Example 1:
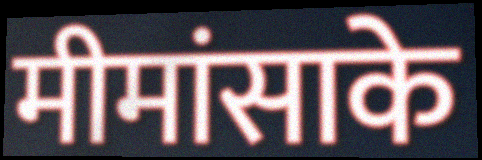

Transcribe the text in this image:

मीमांसाके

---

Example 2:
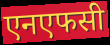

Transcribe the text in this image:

एनएफसी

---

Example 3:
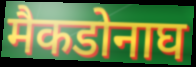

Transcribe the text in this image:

मैकडोनाघ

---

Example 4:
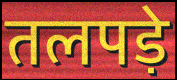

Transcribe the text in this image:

तलपड़े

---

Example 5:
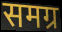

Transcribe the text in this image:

समग्र